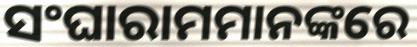
ସଂଘାରାମମାନଙ୍କରେ